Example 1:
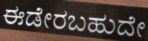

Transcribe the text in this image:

ಈಡೇರಬಹುದೇ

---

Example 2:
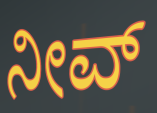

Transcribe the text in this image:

ನೀವ್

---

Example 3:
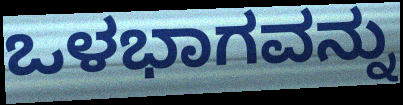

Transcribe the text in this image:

ಒಳಭಾಗವನ್ನು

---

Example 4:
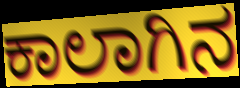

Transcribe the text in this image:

ಕಾಲಾಗಿನ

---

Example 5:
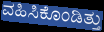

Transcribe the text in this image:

ವಹಿಸಿಕೊಂಡಿತ್ತು